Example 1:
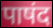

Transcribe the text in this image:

पाषंद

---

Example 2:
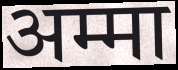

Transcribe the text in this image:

अम्‍मा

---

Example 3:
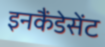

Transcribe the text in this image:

इनकैंडेसेंट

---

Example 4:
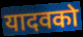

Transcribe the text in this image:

यादवको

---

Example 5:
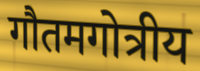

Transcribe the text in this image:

गौतमगोत्रीय